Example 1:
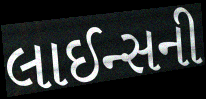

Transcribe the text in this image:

લાઈન્સની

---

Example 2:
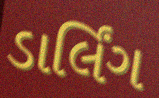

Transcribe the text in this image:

ડાર્લિંગ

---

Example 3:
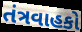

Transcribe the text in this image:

તંત્રવાહકો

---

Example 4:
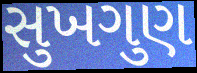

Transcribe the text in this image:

સુખગુણ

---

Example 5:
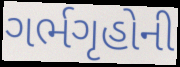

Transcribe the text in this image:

ગર્ભગૃહોની